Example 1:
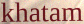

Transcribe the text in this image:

khatam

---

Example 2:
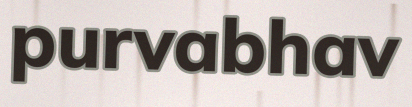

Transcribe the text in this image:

purvabhav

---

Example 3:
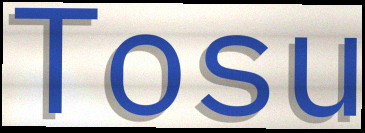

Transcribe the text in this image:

Tosu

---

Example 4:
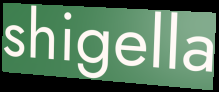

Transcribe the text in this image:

shigella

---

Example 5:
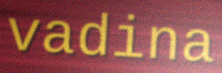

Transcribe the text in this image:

vadina